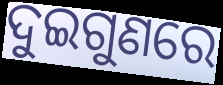
ଦୁଇଗୁଣରେ